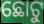
ଛୋଟୁ